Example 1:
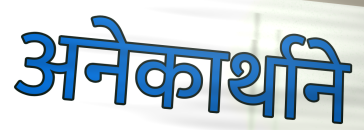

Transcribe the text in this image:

अनेकार्थाने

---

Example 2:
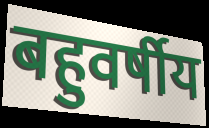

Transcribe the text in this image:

बहुवर्षीय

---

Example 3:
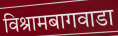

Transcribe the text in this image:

विश्रामबागवाडा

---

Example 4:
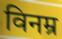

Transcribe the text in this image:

विनम्र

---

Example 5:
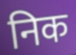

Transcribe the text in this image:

निक